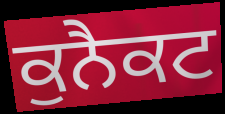
ਕੁਨੈਕਟ